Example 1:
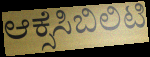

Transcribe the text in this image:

ಆಕ್ಸೆಸಿಬಿಲಿಟಿ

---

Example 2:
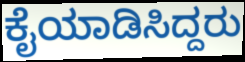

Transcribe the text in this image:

ಕೈಯಾಡಿಸಿದ್ದರು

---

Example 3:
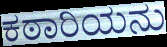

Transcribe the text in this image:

ಕಠಾರಿಯನು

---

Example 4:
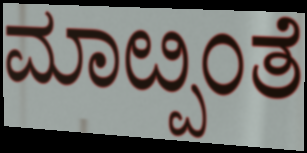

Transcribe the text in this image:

ಮಾೞ್ಪಂತೆ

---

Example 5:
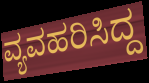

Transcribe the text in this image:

ವ್ಯವಹರಿಸಿದ್ದ